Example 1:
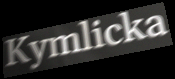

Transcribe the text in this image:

Kymlicka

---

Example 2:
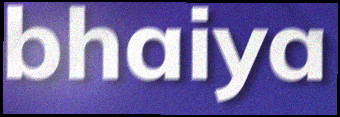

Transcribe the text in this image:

bhaiya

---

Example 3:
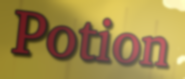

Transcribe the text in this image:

Potion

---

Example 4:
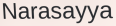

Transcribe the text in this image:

Narasayya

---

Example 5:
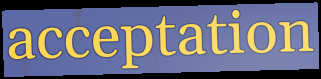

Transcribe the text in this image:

acceptation